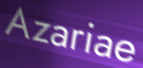
Azariae